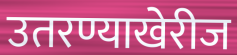
उतरण्याखेरीज